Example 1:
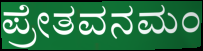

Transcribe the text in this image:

ಪ್ರೇತವನಮಂ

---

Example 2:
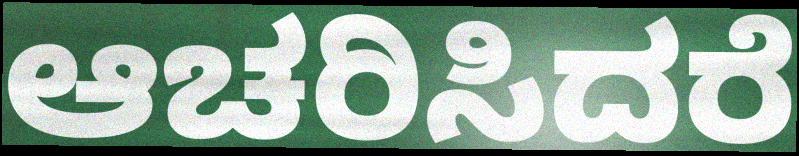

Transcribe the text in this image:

ಆಚರಿಸಿದರೆ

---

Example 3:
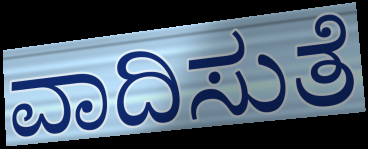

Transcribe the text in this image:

ವಾದಿಸುತೆ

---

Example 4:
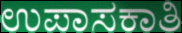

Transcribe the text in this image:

ಉಪಾಸಕಾತಿ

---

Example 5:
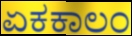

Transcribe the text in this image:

ಏಕಕಾಲಂ